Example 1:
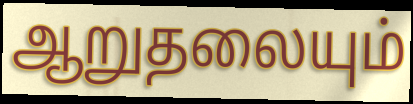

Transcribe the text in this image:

ஆறுதலையும்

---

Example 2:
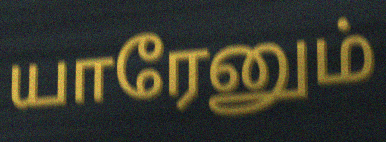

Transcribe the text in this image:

யாரேனும்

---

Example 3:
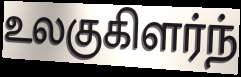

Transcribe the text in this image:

உலகுகிளர்ந்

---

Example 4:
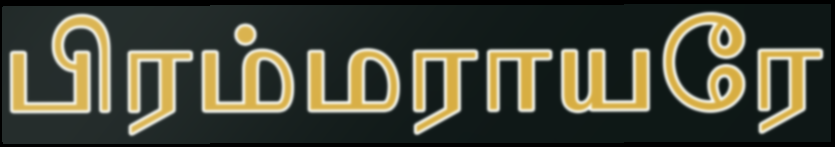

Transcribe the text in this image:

பிரம்மராயரே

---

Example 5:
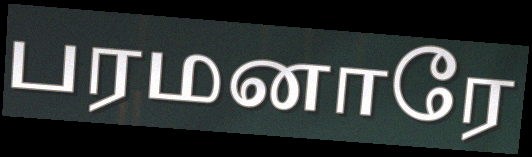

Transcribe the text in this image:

பரமனாரே